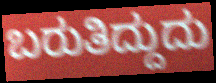
ಬರುತಿದ್ದುದು